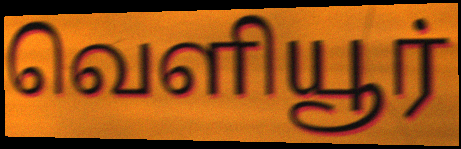
வெளியூர்